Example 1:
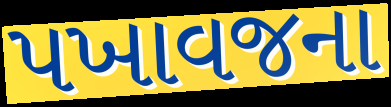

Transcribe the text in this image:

પખાવજના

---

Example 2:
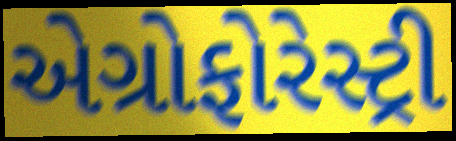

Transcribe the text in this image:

એગ્રોફોરેસ્ટ્રી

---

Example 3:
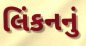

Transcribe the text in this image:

લિંકનનું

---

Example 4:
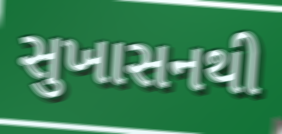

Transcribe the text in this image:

સુખાસનથી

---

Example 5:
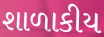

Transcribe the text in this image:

શાળાકીય